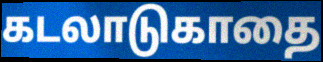
கடலாடுகாதை